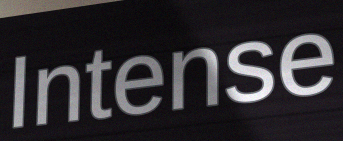
Intense